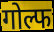
गोल्फ